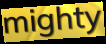
mighty